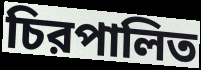
চিরপালিত